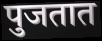
पुजतात